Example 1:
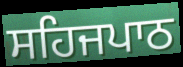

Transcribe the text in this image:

ਸਹਿਜਪਾਠ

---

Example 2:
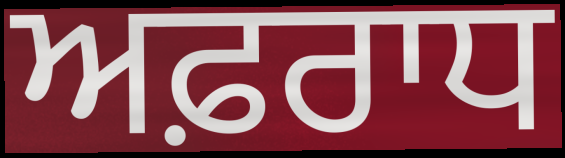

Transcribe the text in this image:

ਅਫ਼ਰਾਧ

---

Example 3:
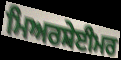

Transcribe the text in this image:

ਮਿਅਰਸ਼ੇਈਮਰ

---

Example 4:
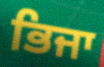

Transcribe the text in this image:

ਭਿਜਾ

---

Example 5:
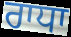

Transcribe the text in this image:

ਰਾਧਾ